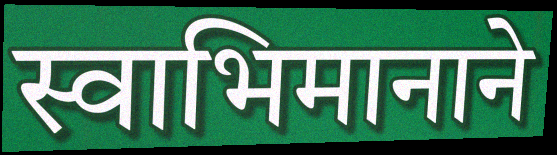
स्वाभिमानाने